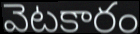
వెటకారం